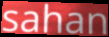
sahan